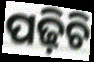
ପଢ଼ିଚି